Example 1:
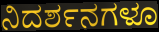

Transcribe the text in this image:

ನಿದರ್ಶನಗಳೂ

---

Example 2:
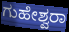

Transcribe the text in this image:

ಗುಹೇಶ್ವರಾ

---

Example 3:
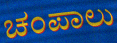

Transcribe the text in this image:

ಚಂಪಾಲು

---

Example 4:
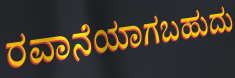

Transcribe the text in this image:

ರವಾನೆಯಾಗಬಹುದು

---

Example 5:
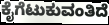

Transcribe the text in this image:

ಕೈಗೆಟುಕುವಂತಿದೆ